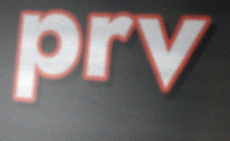
prv